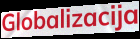
Globalizacija